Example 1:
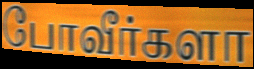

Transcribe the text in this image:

போவீர்களா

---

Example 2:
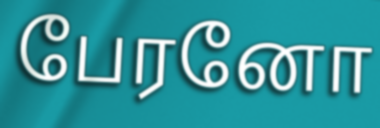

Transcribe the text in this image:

பேரனோ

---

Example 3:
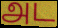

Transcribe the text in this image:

அட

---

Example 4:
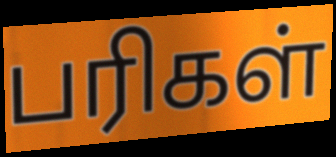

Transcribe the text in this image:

பரிகள்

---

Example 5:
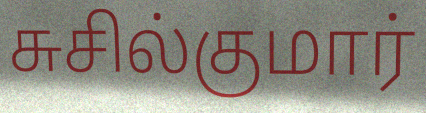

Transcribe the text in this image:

சுசில்குமார்